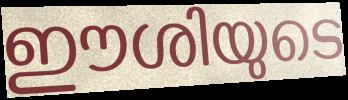
ഈശിയുടെ